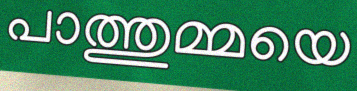
പാത്തുമ്മയെ